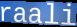
raali